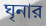
ঘৃনার